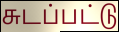
சுடப்பட்டு